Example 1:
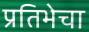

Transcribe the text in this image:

प्रतिभेचा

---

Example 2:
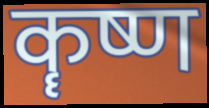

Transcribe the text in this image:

कॄष्ण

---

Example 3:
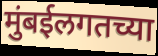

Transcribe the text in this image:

मुंबईलगतच्या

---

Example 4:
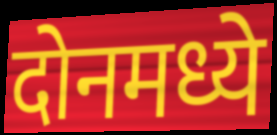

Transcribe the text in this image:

दोनमध्ये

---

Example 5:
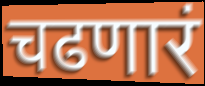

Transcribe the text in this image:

चढणारं